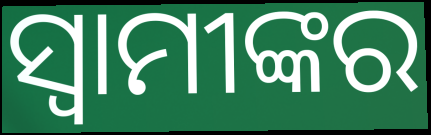
ସ୍ୱାମୀଙ୍କର